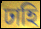
ঢাহি